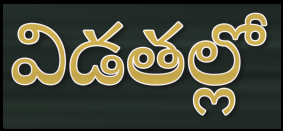
విడతల్లో